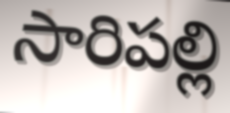
సారిపల్లి